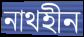
নাথহীন